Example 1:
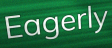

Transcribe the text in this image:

Eagerly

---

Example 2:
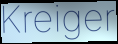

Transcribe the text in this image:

Kreiger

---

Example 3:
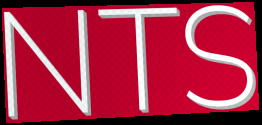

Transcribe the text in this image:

NTS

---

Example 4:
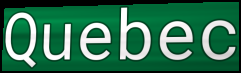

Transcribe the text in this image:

Quebec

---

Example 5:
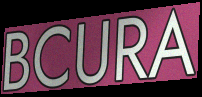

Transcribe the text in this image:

BCURA